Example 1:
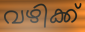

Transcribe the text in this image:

വഴിക്ക്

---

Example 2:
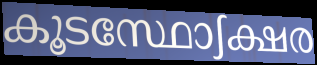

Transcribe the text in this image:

കൂടസ്ഥോഽക്ഷര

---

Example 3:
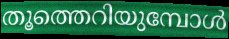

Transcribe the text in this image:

തൂത്തെറിയുമ്പോൾ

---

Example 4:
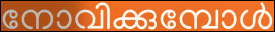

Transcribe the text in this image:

നോവിക്കുമ്പോൾ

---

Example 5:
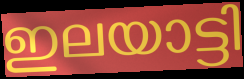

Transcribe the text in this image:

ഇലയാട്ടി